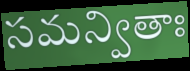
సమన్వితాః